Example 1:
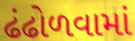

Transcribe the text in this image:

ઢંઢોળવામાં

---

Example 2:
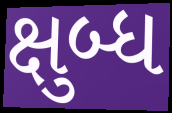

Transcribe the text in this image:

ક્ષુબ્ધ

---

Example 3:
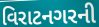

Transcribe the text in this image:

વિરાટનગરની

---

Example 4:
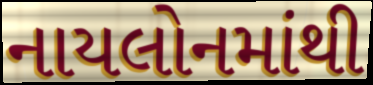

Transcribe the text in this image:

નાયલોનમાંથી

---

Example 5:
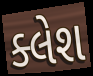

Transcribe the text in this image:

ક્લેશ